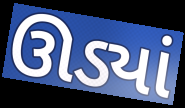
ઊડ્યાં